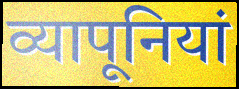
व्यापूनियां